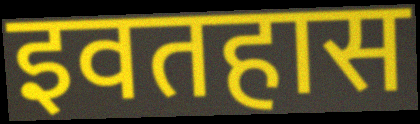
इवतहास